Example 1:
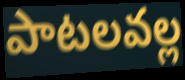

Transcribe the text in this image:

పాటలవల్ల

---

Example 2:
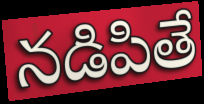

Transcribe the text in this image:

నడిపితే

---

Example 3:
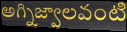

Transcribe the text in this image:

అగ్నిజ్వాలవంటి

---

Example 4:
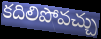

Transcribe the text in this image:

కదిలిపోవచ్చు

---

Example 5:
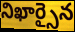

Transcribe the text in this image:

నిఖార్సైన